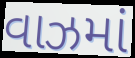
વાઝમાં